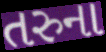
તરુના